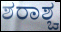
ಶರಾಶ್ಚ